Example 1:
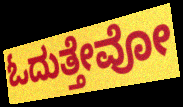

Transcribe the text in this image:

ಓದುತ್ತೇವೋ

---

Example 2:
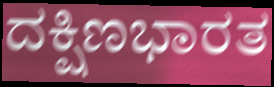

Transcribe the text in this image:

ದಕ್ಷಿಣಭಾರತ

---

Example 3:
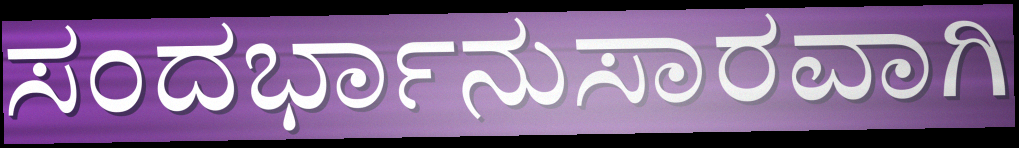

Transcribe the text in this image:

ಸಂದರ್ಭಾನುಸಾರವಾಗಿ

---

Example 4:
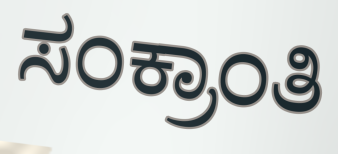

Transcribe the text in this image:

ಸಂಕ್ರಾಂತಿ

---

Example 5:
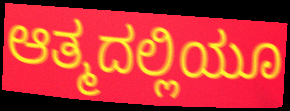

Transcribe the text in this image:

ಆತ್ಮದಲ್ಲಿಯೂ